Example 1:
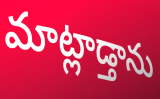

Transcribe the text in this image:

మాట్లాడ్తాను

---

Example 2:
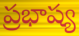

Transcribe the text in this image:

ప్రభాష్య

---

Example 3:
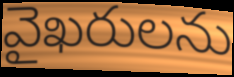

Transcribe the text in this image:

వైఖరులను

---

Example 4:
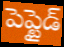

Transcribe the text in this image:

పెప్టైడ్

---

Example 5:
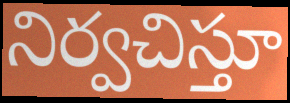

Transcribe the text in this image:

నిర్వచిస్తూ